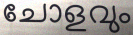
ചോളവും